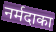
नर्मदाका